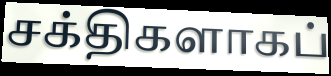
சக்திகளாகப்